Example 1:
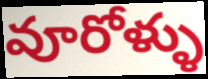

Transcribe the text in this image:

వూరోళ్ళు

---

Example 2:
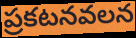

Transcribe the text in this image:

ప్రకటనవలన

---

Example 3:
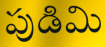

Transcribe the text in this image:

పుడిమి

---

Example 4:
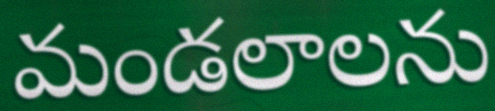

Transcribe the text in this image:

మండలాలను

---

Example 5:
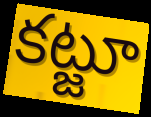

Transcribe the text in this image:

కట్జూ